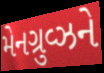
મેનગ્રુવ્ઝને